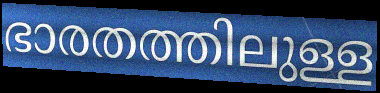
ഭാരതത്തിലുള്ള